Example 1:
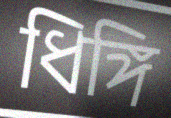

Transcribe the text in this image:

ধিঙ্গি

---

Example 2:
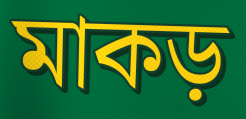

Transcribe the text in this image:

মাকড়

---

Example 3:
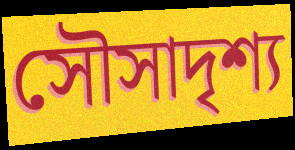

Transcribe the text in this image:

সৌসাদৃশ্য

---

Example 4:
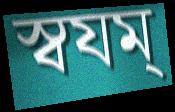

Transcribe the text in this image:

স্বযম্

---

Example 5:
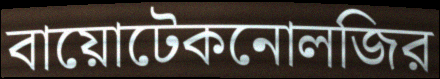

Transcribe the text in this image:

বায়োটেকনোলজির